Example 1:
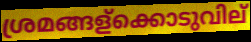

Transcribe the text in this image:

ശ്രമങ്ങള്ക്കൊടുവില്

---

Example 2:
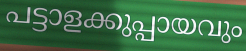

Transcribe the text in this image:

പട്ടാളക്കുപ്പായവും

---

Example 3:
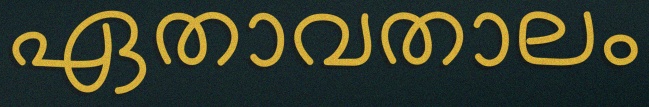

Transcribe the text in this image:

ഏതാവതാലം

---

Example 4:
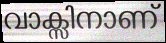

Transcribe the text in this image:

വാക്സിനാണ്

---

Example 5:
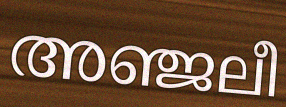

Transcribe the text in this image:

അഞ്ജലീ